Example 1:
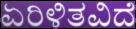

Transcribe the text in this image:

ಏರಿಳಿತವಿದೆ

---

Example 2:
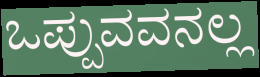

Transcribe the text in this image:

ಒಪ್ಪುವವನಲ್ಲ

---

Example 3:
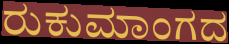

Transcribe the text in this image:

ರುಕುಮಾಂಗದ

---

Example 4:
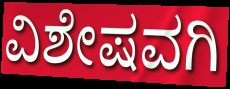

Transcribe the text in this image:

ವಿಶೇಷವಗಿ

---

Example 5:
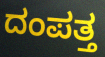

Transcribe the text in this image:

ದಂಪತ್ತ